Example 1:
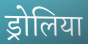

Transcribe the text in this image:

ड्रोलिया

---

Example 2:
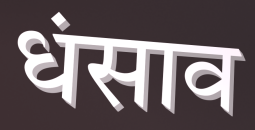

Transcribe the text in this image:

धंसाव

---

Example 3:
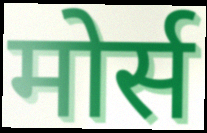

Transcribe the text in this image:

मोर्स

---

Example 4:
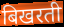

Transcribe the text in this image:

बिखरती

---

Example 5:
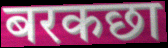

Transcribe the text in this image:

बरकछा